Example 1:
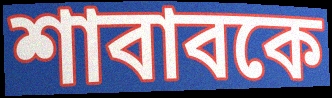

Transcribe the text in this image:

শাবাবকে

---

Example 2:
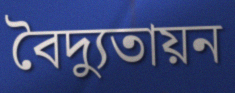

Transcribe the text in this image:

বৈদ্যুতায়ন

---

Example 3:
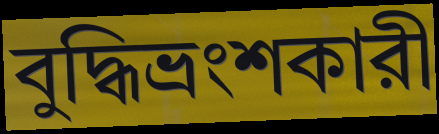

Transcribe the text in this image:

বুদ্ধিভ্রংশকারী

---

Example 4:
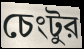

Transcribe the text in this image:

চেংটুর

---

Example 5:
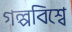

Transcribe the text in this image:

গল্পবিশ্বে